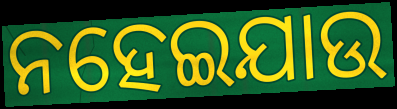
ନହେଇଯାଉ